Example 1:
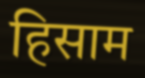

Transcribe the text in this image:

हिसाम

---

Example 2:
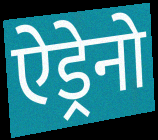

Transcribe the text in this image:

ऐड्रेनो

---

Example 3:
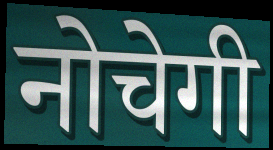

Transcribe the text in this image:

नोचेगी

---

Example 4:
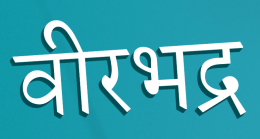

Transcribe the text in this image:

वीरभद्र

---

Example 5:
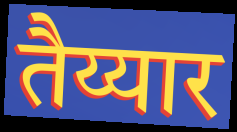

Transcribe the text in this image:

तैय्यार